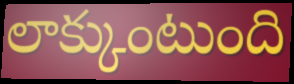
లాక్కుంటుంది